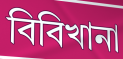
বিবিখানা